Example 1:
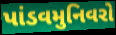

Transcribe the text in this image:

પાંડવમુનિવરો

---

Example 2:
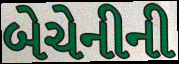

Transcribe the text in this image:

બેચેનીની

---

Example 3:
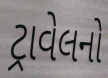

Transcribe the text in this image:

ટ્રાવેલનો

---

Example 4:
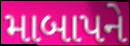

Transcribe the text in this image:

માબાપને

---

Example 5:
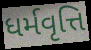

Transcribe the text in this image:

ધર્મવૃત્તિ